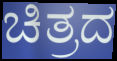
ಚಿತ್ರದ